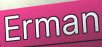
Erman